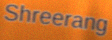
Shreerang